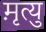
म़ृत्यु